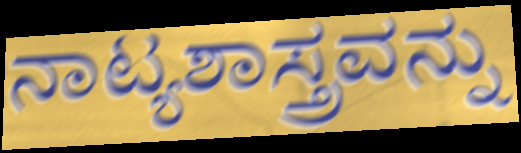
ನಾಟ್ಯಶಾಸ್ತ್ರವನ್ನು